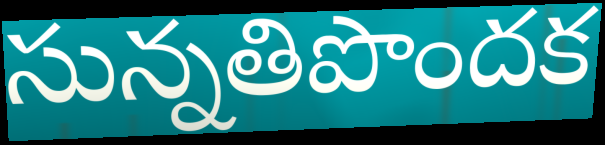
సున్నతిపొందక